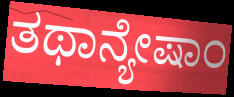
ತಥಾನ್ಯೇಷಾಂ